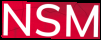
NSM